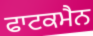
ਫਾਟਕਮੈਨ